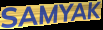
SAMYAK